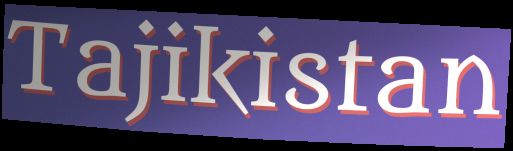
Tajikistan